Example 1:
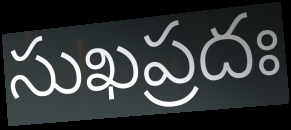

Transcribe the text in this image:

సుఖప్రదః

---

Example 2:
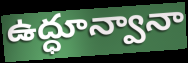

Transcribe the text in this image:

ఉద్ధూన్వానా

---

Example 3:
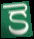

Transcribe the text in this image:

కె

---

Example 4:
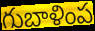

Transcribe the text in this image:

గుబాళింప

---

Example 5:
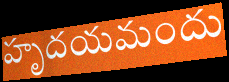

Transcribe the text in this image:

హృదయమందు